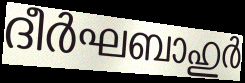
ദീർഘബാഹുർ